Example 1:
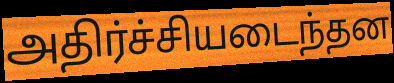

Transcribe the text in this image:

அதிர்ச்சியடைந்தன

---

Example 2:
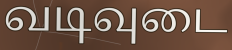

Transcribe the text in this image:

வடிவுடை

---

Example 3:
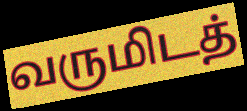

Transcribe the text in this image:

வருமிடத்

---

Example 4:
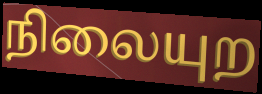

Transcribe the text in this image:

நிலையுற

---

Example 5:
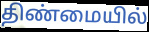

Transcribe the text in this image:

திண்மையில்